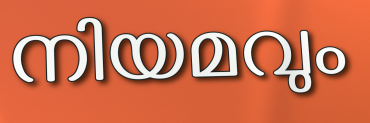
നിയമവും